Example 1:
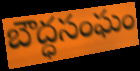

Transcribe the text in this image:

బౌద్ధసంఘం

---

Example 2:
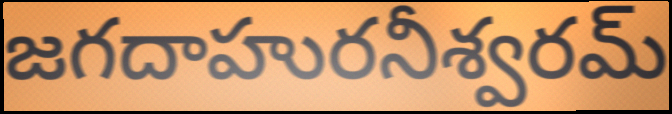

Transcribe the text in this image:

జగదాహురనీశ్వరమ్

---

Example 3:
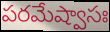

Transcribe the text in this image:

పరమేష్వాసః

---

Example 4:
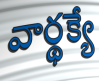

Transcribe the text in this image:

వార్థక్యే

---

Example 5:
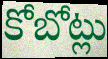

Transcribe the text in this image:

కోబోట్లు